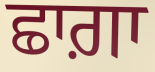
ਛਾਗ਼ਾ